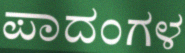
ಪಾದಂಗಳ